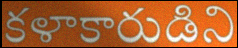
కళాకారుడిని